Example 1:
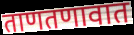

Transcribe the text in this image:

ताणतणावात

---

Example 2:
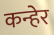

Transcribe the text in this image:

कन्हेर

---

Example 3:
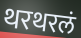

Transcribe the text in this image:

थरथरलं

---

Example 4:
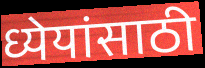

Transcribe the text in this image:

ध्येयांसाठी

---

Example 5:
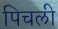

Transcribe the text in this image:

पिचली